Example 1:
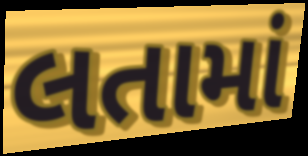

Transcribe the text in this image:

લતામાં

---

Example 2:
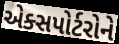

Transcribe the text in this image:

એક્સપોર્ટરોને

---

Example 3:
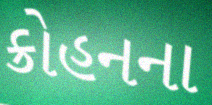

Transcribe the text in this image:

ક્રોહનના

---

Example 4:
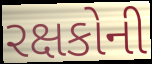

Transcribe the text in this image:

રક્ષકોની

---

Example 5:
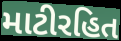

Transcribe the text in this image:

માટીરહિત